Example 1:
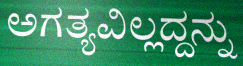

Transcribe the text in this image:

ಅಗತ್ಯವಿಲ್ಲದ್ದನ್ನು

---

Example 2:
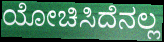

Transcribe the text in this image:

ಯೋಚಿಸಿದೆನಲ್ಲ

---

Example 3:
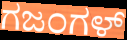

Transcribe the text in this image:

ಗಜಂಗಳ್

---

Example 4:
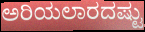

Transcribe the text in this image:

ಅರಿಯಲಾರದಷ್ಟು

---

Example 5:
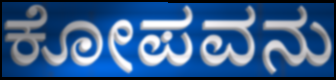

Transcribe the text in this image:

ಕೋಪವನು